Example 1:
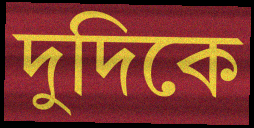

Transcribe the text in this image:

দুদিকে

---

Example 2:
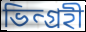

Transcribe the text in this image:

ভিন্গ্রহী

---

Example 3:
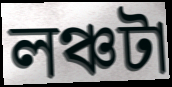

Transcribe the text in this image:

লঞ্চটা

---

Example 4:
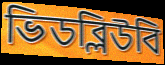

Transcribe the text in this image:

ভিডব্লিউবি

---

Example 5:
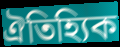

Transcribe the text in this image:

ঐতিহ্যিক